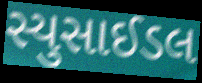
સ્યુસાઈડલ